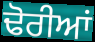
ਢੋਰੀਆਂ